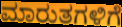
ಮಾರುತಗಳಿಗೆ